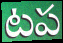
టప